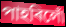
পাহৰিলোঁ